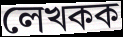
লেখকক